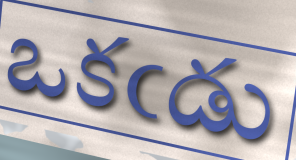
ఒకఁడు